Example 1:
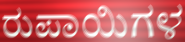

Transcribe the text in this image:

ರುಪಾಯಿಗಳ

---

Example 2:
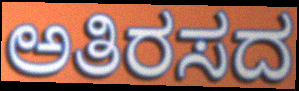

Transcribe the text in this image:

ಅತಿರಸದ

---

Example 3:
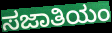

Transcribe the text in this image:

ಸಜಾತಿಯಂ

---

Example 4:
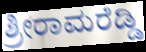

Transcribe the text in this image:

ಶ್ರೀರಾಮರೆಡ್ಡಿ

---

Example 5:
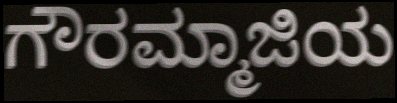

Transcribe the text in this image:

ಗೌರಮ್ಮಾಜಿಯ